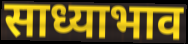
साध्याभाव